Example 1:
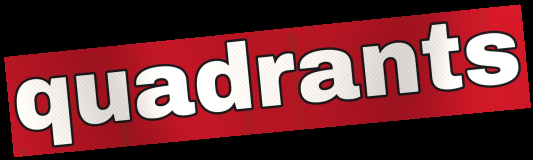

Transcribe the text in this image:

quadrants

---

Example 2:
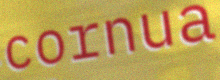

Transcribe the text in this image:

cornua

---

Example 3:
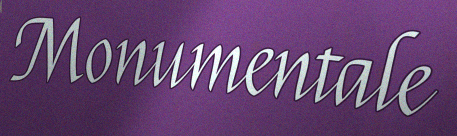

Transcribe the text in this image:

Monumentale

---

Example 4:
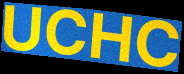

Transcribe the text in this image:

UCHC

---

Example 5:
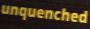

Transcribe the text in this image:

unquenched